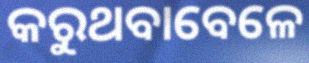
କରୁଥବାବେଳେ